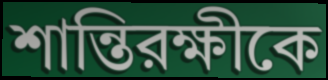
শান্তিরক্ষীকে